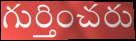
గుర్తించరు